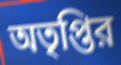
অতৃপ্তির